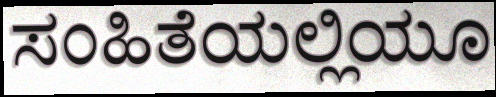
ಸಂಹಿತೆಯಲ್ಲಿಯೂ